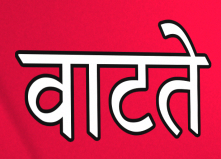
वाटते